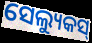
ସେଲ୍ୟୁକସ୍